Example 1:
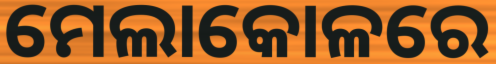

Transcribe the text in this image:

ମେଲାକୋଳରେ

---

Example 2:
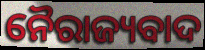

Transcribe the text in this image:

ନୈରାଜ୍ୟବାଦ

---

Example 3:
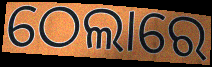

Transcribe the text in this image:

ଠେଲାରେ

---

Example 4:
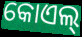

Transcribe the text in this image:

କୋଏଲ୍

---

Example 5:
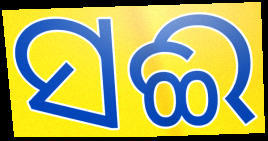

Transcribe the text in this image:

ସଈ